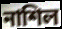
নাশিল